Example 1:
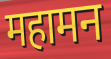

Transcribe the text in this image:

महामन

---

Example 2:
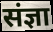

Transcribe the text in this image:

संज्ञा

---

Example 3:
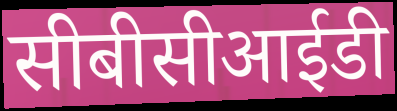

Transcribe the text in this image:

सीबीसीआईडी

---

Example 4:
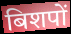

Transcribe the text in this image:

बिशपों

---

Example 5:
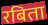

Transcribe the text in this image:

रबिता